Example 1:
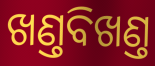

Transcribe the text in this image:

ଖଣ୍ତବିଖଣ୍ତ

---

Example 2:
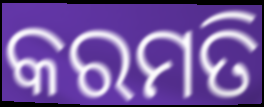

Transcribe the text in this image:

କରମତି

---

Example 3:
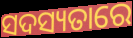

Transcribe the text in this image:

ସଦସ୍ୟତାରେ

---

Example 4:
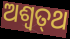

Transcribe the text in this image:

ଅଶ୍ଵତ୍‍ଥ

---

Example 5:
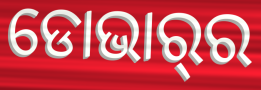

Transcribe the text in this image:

ଡୋଭାର୍‌ର